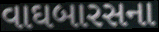
વાઘબારસના